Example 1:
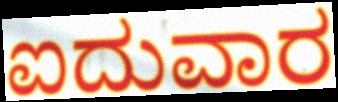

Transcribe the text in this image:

ಐದುವಾರ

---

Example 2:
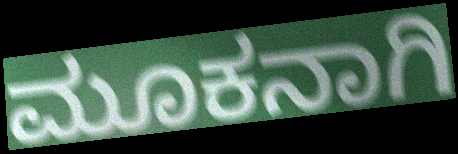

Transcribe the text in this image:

ಮೂಕನಾಗಿ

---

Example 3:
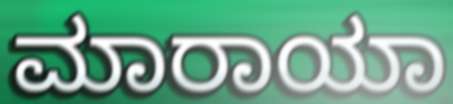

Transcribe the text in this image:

ಮಾರಾಯಾ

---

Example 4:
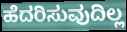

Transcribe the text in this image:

ಹೆದರಿಸುವುದಿಲ್ಲ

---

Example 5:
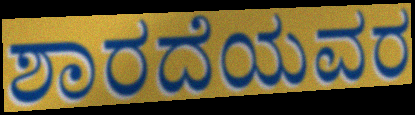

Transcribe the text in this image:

ಶಾರದೆಯವರ